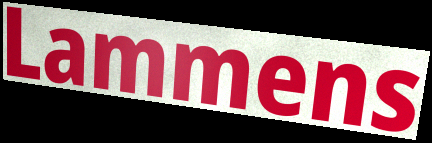
Lammens